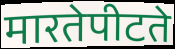
मारतेपीटते